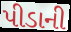
પીડાની